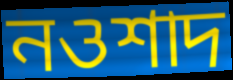
নওশাদ